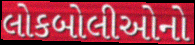
લોકબોલીઓનો